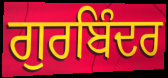
ਗੁਰਬਿੰਦਰ